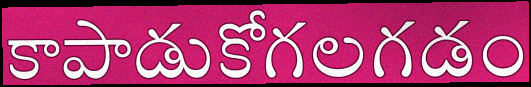
కాపాడుకోగలగడం